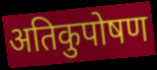
अतिकुपोषण